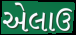
એલાઉ